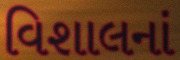
વિશાલનાં